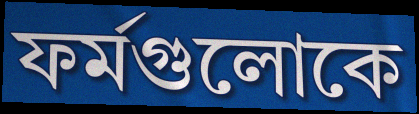
ফর্মগুলোকে